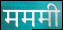
मममी